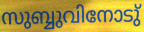
സുബ്ബുവിനോടു്